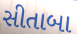
સીતાબા